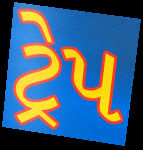
ટ્રેપ